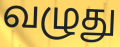
வழுது